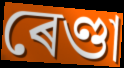
ৰেণ্ডা